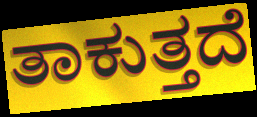
ತಾಕುತ್ತದೆ